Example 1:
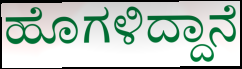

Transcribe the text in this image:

ಹೊಗಳಿದ್ದಾನೆ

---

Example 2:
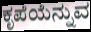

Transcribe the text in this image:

ಕೃಪೆಯೆನ್ನುವ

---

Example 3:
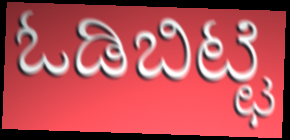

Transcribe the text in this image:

ಓಡಿಬಿಟ್ಟೆ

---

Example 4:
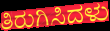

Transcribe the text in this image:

ತಿರುಗಿಸಿದಳು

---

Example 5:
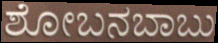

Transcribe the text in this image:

ಶೋಬನಬಾಬು